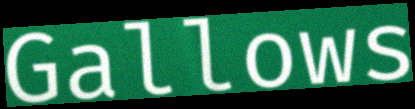
Gallows